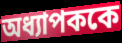
অধ্যাপককে